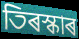
তিৰস্কাৰ